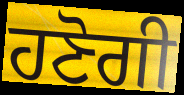
ਹਣੋਗੀ